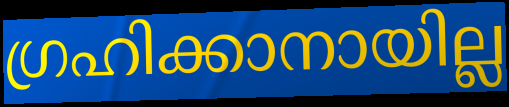
ഗ്രഹിക്കാനായില്ല